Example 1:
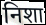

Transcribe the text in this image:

निशा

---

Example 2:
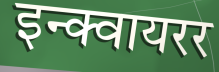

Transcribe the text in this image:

इन्क्वायरर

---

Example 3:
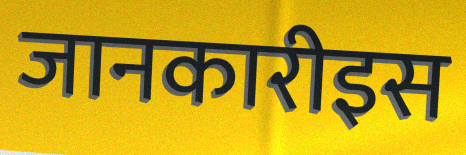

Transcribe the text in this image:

जानकारीइस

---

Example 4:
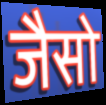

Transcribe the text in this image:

जैसो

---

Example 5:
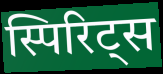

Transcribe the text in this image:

स्पिरिट्स